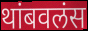
थांबवलंस